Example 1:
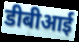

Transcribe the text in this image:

डीबीआई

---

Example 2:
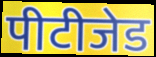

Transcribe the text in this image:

पीटीजेड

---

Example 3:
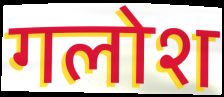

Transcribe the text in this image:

गलोश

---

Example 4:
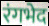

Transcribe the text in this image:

रंगभेद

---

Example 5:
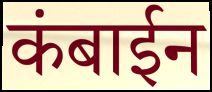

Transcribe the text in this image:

कंबाईन